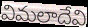
విమలాదేవి